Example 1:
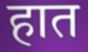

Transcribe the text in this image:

हात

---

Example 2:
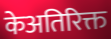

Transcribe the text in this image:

केअतिरिक्त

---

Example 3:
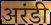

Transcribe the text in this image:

अरंडी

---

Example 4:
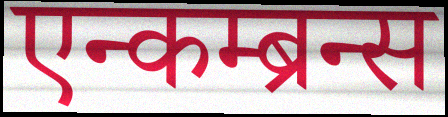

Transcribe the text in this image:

एन्कम्ब्रन्स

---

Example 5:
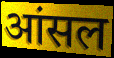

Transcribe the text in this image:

आंसल